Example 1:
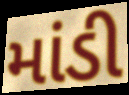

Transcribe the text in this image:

માંડી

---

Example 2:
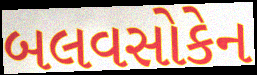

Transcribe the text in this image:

બલવસોકેન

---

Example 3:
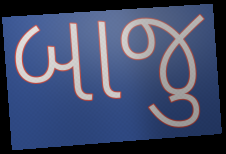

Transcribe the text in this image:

બાજુ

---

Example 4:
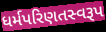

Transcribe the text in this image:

ધર્મપરિણતસ્વરૂપ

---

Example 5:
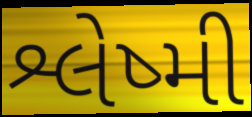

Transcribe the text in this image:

શ્લેષ્મી